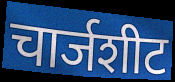
चार्जशीट